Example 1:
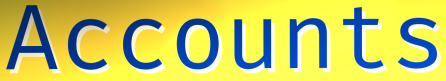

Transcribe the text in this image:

Accounts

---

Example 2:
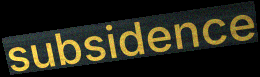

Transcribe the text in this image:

subsidence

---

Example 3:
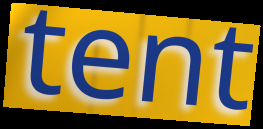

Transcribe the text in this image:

tent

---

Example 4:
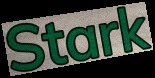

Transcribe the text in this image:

Stark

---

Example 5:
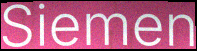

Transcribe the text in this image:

Siemen